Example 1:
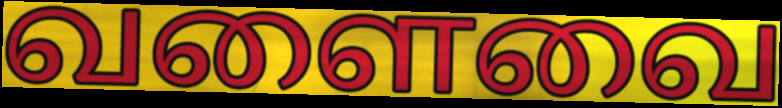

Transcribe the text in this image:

வளைவை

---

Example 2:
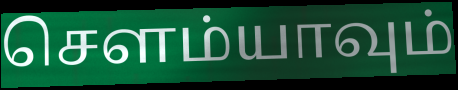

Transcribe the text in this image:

சௌம்யாவும்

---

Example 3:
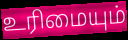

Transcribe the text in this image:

உரிமையும்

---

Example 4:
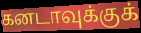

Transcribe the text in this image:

கனடாவுக்குக்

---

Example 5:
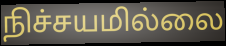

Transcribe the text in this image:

நிச்சயமில்லை